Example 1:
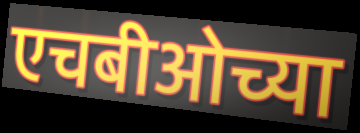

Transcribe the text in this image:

एचबीओच्या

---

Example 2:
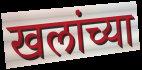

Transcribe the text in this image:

खलांच्या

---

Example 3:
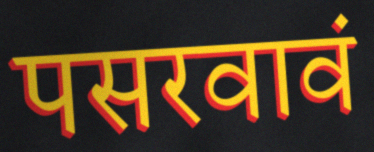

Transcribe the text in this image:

पसरवावं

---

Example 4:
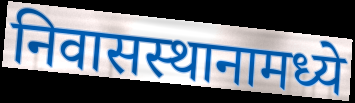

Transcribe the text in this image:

निवासस्थानामध्ये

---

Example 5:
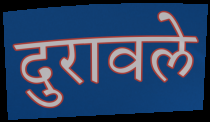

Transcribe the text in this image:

दुरावले